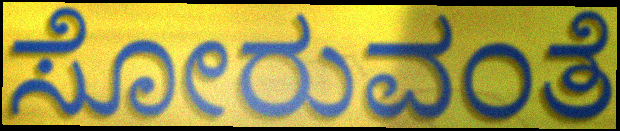
ಸೋರುವಂತೆ